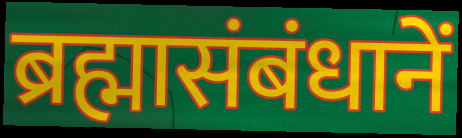
ब्रह्मासंबंधानें